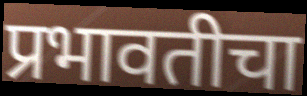
प्रभावतीचा